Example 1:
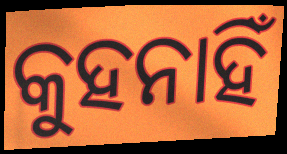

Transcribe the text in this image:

କୁହନାହିଁ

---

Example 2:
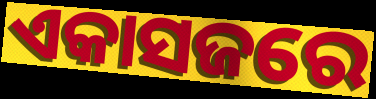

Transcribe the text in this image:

ଏକାସଜରେ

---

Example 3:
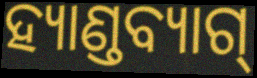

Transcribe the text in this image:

ହ୍ୟାଣ୍ଡବ୍ୟାଗ୍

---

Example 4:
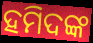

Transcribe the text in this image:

ହମିଦଙ୍କ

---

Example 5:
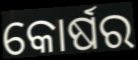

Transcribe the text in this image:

କୋର୍ଷର